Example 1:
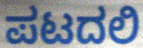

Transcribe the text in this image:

ಪಟದಲಿ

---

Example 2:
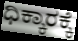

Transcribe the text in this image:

ಧಿಕ್ಕಾರಕ್ಕೆ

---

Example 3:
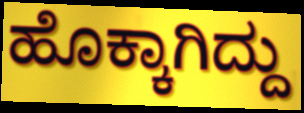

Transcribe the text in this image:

ಹೊಕ್ಕಾಗಿದ್ದು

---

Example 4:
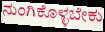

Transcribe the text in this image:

ನುಂಗಿಕೊಳ್ಳಬೇಕು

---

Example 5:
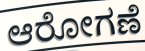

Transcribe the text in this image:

ಆರೋಗಣೆ